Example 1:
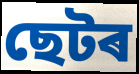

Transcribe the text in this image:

ছেটৰ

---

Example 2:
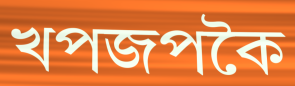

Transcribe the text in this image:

খপজপকৈ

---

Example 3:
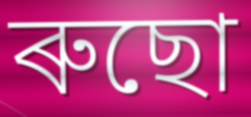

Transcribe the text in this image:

ৰুছো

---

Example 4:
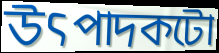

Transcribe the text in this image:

উৎপাদকটো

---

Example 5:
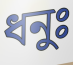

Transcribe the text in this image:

ধনুঃ